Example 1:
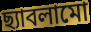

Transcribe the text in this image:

ছ্যাবলামো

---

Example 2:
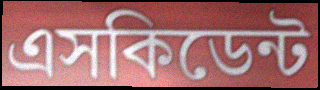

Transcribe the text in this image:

এসকিডেন্ট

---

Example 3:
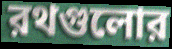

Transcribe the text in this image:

রথগুলোর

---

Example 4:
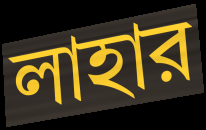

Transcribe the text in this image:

লাহার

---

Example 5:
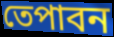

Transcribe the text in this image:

তেপাবন